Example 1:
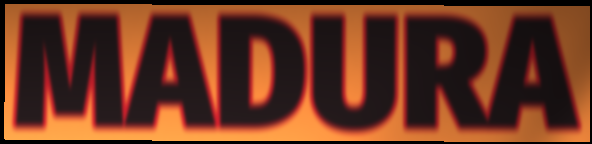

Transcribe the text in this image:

MADURA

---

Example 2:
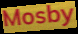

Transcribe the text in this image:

Mosby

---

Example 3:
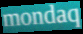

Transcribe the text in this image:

mondaq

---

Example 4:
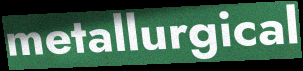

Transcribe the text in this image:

metallurgical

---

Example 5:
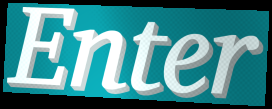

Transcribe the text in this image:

Enter